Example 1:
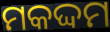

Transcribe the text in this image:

ମକଦ୍ଦମ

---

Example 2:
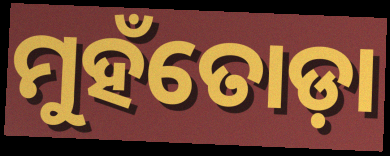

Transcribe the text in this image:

ମୁହଁତୋଡ଼ା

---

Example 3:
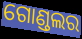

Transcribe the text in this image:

ଗୋଣ୍ଡଲର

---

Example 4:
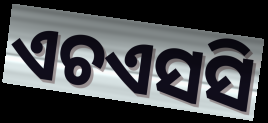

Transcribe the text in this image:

ଏଚଏସସି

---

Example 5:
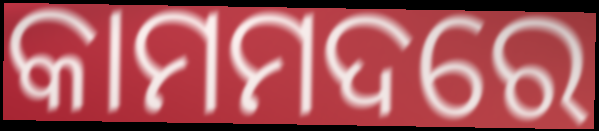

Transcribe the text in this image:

କାମମଦରେ